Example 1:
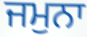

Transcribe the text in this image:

ਜਮੁਨਾ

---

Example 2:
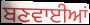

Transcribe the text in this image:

ਬਣਵਾਈਆਂ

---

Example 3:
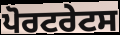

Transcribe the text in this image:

ਪੋਰਟਰੇਟਸ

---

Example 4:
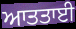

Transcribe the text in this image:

ਆਤਤਾਈ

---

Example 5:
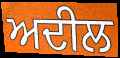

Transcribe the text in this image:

ਅਦੀਲ